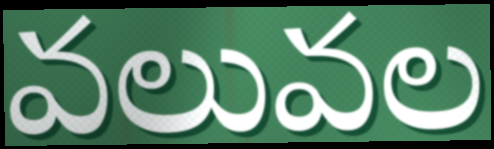
వలువల